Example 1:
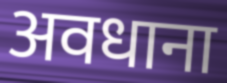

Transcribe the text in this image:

अवधाना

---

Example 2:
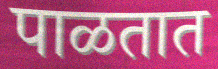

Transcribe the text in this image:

पाळतात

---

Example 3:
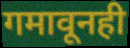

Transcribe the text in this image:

गमावूनही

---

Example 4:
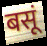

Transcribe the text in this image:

बसूं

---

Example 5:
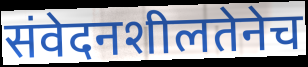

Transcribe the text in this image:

संवेदनशीलतेनेच